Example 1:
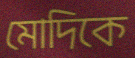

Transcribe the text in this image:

মোদিকে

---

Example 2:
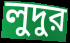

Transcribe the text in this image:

লুদুর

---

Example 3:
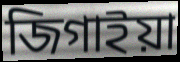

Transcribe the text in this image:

জিগাইয়া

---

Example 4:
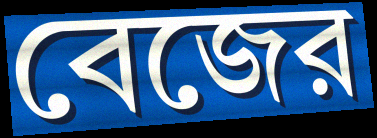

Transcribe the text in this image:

বেজের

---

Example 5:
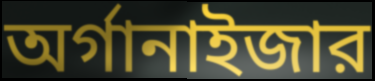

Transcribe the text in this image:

অর্গানাইজার